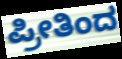
ಪ್ರೀತಿಂದ